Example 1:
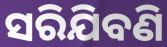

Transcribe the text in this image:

ସରିଯିବଣି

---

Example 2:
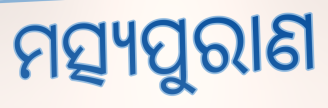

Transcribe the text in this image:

ମତ୍ସ୍ୟପୁରାଣ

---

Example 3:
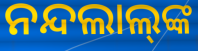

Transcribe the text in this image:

ନନ୍ଦଲାଲ୍‌ଙ୍କ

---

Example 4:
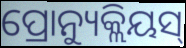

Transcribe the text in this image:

ପ୍ରୋନ୍ୟୁକ୍ଲିୟସ୍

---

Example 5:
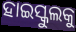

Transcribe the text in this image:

ହାଇସ୍କୁଲକୁ